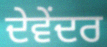
ਦੇਵੇਂਦਰ